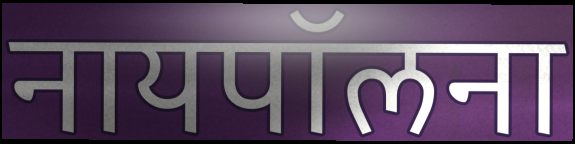
नायपॉलना